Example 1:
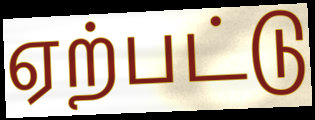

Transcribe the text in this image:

ஏற்பட்டு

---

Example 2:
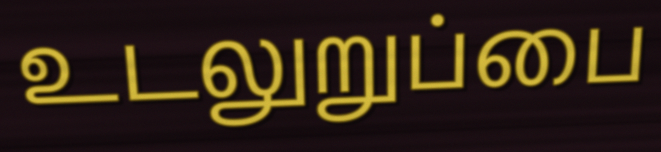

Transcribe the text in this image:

உடலுறுப்பை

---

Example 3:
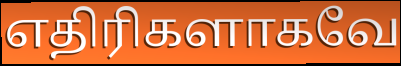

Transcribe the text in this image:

எதிரிகளாகவே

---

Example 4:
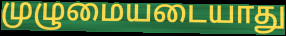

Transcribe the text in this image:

முழுமையடையாது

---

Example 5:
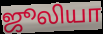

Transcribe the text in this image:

ஜூலியா